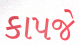
કાપજે